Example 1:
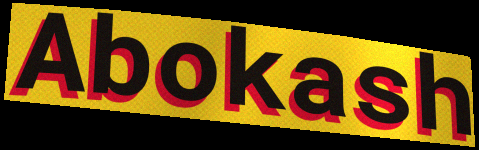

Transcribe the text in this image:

Abokash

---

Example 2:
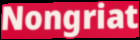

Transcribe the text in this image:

Nongriat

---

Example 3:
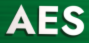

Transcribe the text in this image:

AES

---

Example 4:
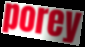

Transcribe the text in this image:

porey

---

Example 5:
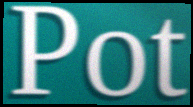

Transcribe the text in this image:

Pot